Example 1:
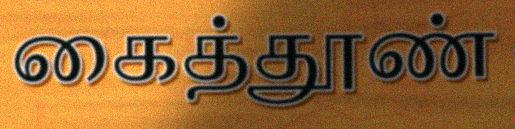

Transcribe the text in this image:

கைத்தூண்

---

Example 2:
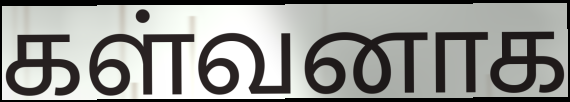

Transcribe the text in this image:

கள்வனாக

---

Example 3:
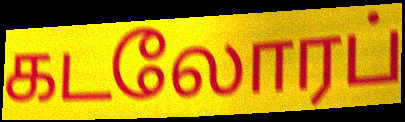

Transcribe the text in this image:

கடலோரப்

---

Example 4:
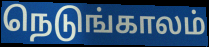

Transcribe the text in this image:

நெடுங்காலம்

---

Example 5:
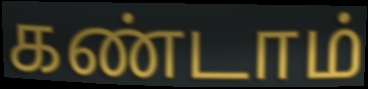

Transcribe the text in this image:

கண்டாம்